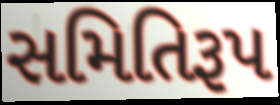
સમિતિરૂપ